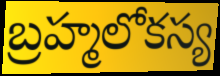
బ్రహ్మలోకస్య